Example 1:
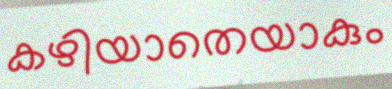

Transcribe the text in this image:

കഴിയാതെയാകും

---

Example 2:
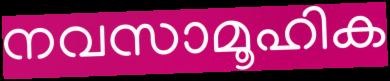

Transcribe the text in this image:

നവസാമൂഹിക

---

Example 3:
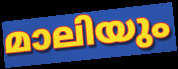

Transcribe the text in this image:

മാലിയും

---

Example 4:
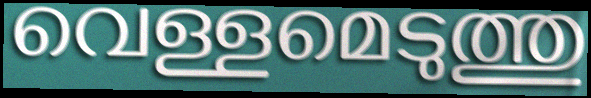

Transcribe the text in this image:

വെള്ളമെടുത്തു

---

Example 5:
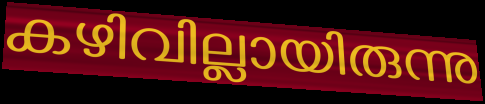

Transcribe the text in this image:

കഴിവില്ലായിരുന്നു